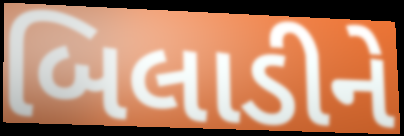
બિલાડીને